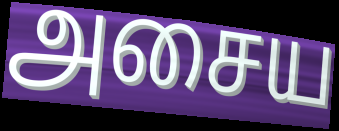
அசைய